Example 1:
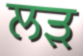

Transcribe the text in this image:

ਲੜ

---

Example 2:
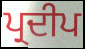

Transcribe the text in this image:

ਪ੍ਰਦੀਪ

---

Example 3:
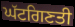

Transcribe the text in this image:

ਘੱਟਗਿਣਤੀ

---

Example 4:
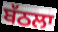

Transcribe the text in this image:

ਬੱਠਲਾ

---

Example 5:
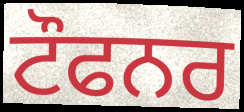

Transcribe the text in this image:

ਟੌਫਨਰ